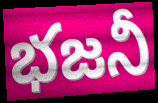
భజనీ